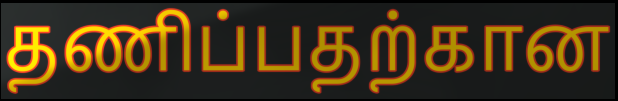
தணிப்பதற்கான